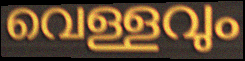
വെള്ളവും